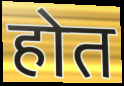
होत